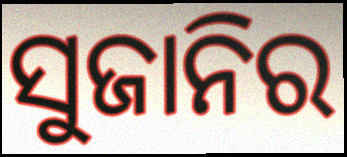
ସୁଜାନିର